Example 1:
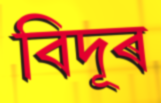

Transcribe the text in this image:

বিদূৰ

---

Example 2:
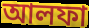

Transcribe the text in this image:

আলফা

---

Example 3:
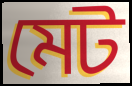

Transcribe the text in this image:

মেট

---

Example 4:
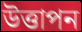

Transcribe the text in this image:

উত্তাপন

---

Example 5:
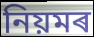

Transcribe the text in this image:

নিয়মৰ